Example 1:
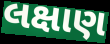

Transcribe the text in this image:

લક્ષાણ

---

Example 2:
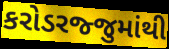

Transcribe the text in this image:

કરોડરજ્જુમાંથી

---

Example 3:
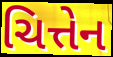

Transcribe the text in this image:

ચિત્તેન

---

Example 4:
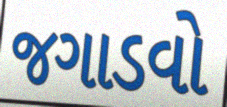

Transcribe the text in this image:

જગાડવો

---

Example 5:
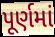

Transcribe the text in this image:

પૂર્ણમાં